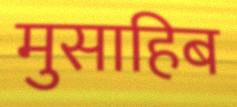
मुसाहिब